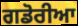
ਗਡੋਰੀਆ